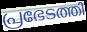
പ്രഭേടത്തി